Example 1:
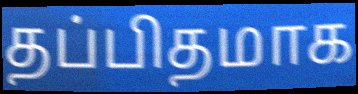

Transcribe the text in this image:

தப்பிதமாக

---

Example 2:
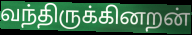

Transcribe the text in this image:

வந்திருக்கினறன்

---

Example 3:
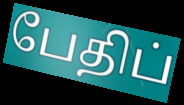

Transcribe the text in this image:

பேதிப்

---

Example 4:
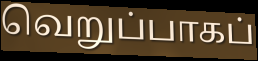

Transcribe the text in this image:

வெறுப்பாகப்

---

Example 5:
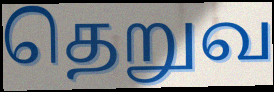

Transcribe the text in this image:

தெறுவ